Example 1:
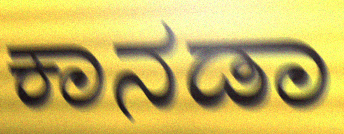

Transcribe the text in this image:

ಕಾನಡಾ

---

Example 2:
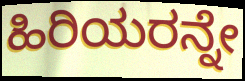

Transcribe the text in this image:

ಹಿರಿಯರನ್ನೇ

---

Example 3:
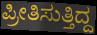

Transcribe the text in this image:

ಪ್ರೀತಿಸುತ್ತಿದ್ದ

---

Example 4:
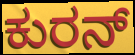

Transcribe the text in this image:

ಕುರನ್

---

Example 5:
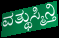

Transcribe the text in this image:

ವತ್ಥುಸ್ಮಿನ್ತಿ